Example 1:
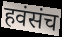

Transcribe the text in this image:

हवंसंच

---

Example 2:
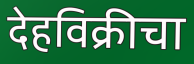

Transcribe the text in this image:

देहविक्रीचा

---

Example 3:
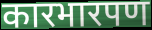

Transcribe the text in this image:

कारभारपण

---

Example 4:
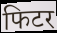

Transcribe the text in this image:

फिटर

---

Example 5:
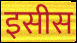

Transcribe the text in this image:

इसीस